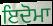
ਇਦੋਮਾ